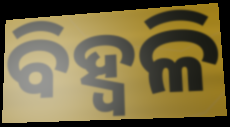
ବିହ୍ୱଳି